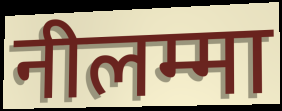
नीलम्मा